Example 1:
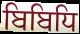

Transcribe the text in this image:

ਬਿਬਿਧਿ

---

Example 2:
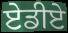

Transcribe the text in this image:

ਏਡੀਏ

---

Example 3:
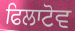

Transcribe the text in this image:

ਫਿਲਾਟੋਵ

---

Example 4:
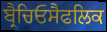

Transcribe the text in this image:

ਬ੍ਰੈਚਿਓਸੈਫਲਿਕ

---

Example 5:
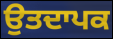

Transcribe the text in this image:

ਉਤਦਾਪਕ